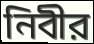
নিবীর